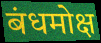
बंधमोक्ष